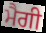
ਮੈਗੀ